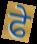
ਫੇ